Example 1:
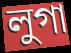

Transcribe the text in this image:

লুগা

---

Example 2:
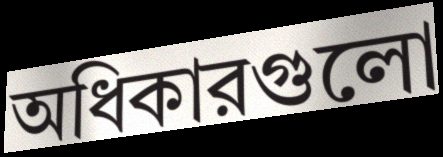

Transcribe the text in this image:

অধিকারগুলো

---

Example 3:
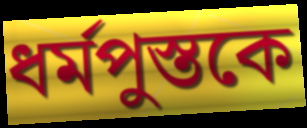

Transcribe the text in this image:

ধর্মপুস্তকে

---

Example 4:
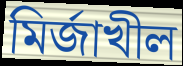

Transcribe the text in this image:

মির্জাখীল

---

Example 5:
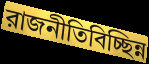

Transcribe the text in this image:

রাজনীতিবিচ্ছিন্ন